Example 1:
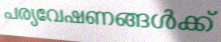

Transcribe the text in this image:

പര്യവേഷണങ്ങൾക്ക്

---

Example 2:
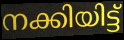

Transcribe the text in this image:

നക്കിയിട്ട്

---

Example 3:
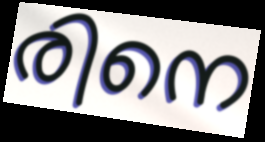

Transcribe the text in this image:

രിനെ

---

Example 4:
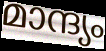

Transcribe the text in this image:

മാന്ദ്യം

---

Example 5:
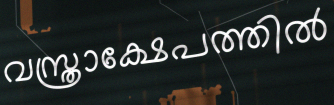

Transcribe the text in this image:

വസ്ത്രാക്ഷേപത്തിൽ